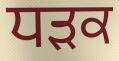
ਧਡ਼ਕ